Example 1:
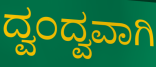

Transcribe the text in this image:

ದ್ವಂದ್ವವಾಗಿ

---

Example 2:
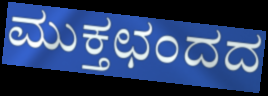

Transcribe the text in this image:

ಮುಕ್ತಛಂದದ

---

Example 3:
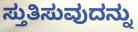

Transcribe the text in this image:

ಸ್ತುತಿಸುವುದನ್ನು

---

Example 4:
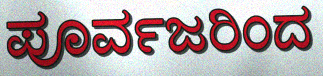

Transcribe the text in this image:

ಪೂರ್ವಜರಿಂದ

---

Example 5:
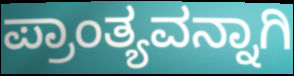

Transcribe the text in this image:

ಪ್ರಾಂತ್ಯವನ್ನಾಗಿ